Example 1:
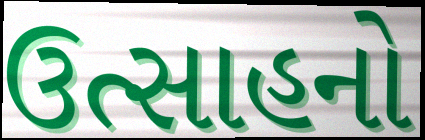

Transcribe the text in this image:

ઉત્સાહનો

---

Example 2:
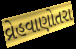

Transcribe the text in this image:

વ્રેહવાણોતરા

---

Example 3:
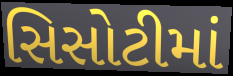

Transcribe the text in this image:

સિસોટીમાં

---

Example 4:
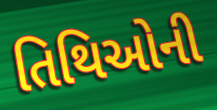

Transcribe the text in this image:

તિથિઓની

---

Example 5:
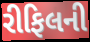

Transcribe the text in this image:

રીફિલની